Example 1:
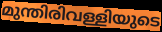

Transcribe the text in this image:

മുന്തിരിവള്ളിയുടെ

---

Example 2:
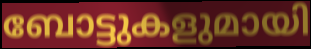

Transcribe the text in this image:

ബോട്ടുകളുമായി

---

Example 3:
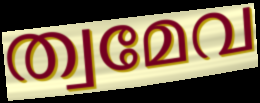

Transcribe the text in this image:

ത്വമേവ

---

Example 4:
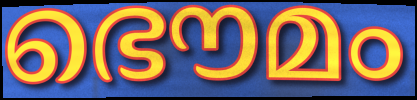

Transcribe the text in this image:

ഭൌമം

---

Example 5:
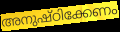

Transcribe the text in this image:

അനുഷ്ഠിക്കേണം